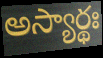
అస్యార్థః